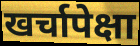
खर्चापेक्षा